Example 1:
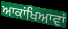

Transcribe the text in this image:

ਆਕਾਂਖਿਆਵਾਂ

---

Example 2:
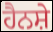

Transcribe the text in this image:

ਹੈਨਸ਼ੇ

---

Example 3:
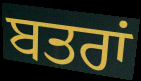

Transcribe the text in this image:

ਬਤਰਾਂ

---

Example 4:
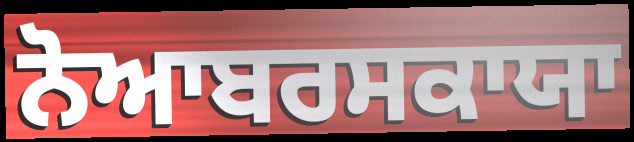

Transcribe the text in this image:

ਨੋਆਬਰਸਕਾਯਾ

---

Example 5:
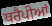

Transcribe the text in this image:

ਥਰੈਪੀਆਂ